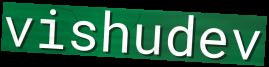
vishudev